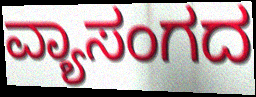
ವ್ಯಾಸಂಗದ